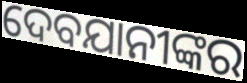
ଦେବଯାନୀଙ୍କର